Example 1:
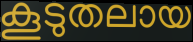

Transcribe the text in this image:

കൂടുതലായ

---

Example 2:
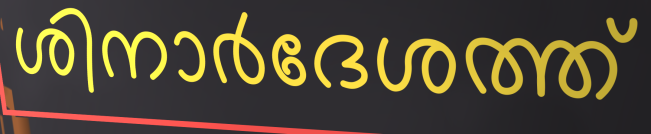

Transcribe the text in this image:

ശിനാർദേശത്ത്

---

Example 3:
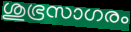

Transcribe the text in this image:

ശുഭ്രസാഗരം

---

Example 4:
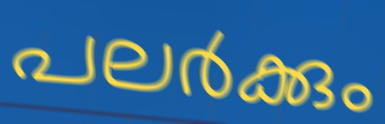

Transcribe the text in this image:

പലർക്കും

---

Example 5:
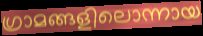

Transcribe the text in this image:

ഗ്രാമങ്ങളിലൊന്നായ